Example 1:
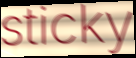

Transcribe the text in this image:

sticky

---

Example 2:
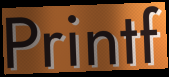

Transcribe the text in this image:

Printf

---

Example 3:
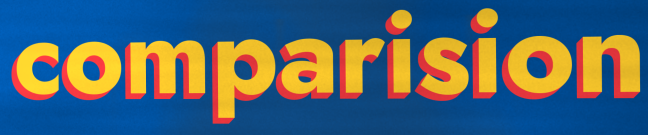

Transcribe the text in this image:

comparision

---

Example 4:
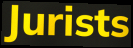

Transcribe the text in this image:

Jurists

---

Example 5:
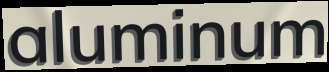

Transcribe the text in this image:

aluminum